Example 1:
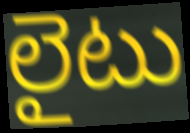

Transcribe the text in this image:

లైటు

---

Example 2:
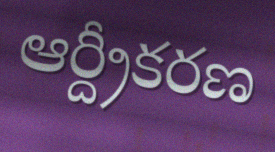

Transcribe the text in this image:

ఆర్ద్రీకరణ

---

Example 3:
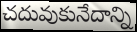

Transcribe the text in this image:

చదువుకునేదాన్ని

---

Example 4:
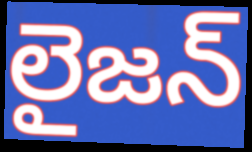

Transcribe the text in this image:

లైజన్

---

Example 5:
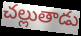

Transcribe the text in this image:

చల్లుతాడు